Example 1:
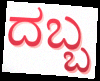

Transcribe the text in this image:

ದಬ್ಬ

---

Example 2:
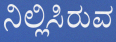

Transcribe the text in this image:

ನಿಲ್ಲಿಸಿರುವ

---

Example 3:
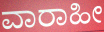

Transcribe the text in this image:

ವಾರಾಹೀ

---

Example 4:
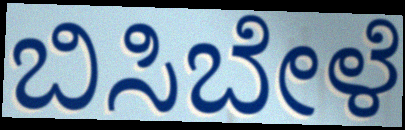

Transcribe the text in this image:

ಬಿಸಿಬೇಳೆ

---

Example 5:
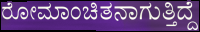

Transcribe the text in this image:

ರೋಮಾಂಚಿತನಾಗುತ್ತಿದ್ದೆ